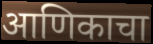
आणिकाचा